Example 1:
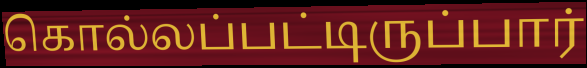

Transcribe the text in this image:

கொல்லப்பட்டிருப்பார்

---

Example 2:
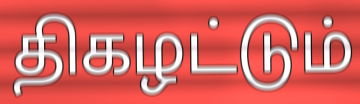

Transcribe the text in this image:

திகழட்டும்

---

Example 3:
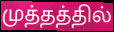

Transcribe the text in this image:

முத்தத்தில்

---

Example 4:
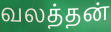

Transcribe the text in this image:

வலத்தன்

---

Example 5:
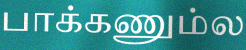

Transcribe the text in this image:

பாக்கணும்ல